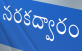
నరకద్వారం